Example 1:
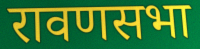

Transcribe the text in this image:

रावणसभा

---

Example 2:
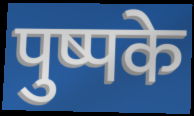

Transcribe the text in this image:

पुष्पके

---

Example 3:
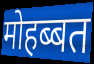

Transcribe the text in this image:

मोहब्बत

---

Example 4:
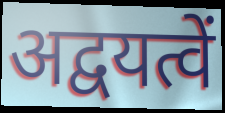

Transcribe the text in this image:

अद्वयत्वें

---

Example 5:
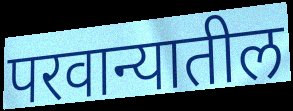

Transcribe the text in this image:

परवान्यातील